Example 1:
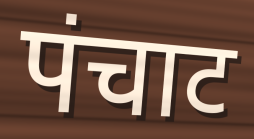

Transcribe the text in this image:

पंचाट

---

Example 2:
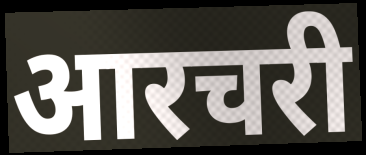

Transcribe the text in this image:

आरचरी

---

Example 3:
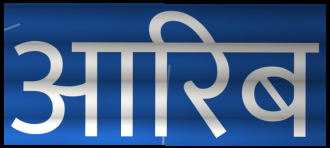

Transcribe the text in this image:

आरिब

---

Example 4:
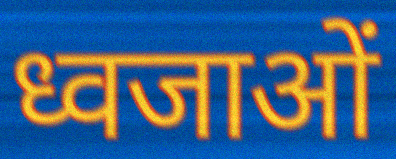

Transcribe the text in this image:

ध्वजाओं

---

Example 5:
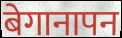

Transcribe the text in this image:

बेगानापन